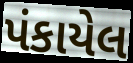
પંકાયેલ